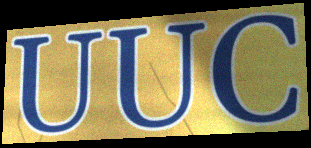
UUC